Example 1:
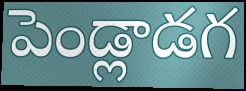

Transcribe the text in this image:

పెండ్లాడగ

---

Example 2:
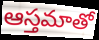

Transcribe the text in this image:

ఆస్తమాతో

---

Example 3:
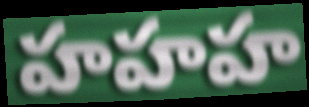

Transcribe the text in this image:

హహహ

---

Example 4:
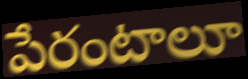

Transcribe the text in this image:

పేరంటాలూ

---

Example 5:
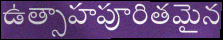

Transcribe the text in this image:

ఉత్సాహపూరితమైన